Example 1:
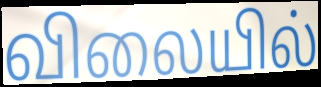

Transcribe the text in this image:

விலையில்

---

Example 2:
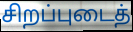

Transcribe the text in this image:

சிறப்புடைத்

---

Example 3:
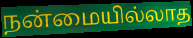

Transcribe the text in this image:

நன்மையில்லாத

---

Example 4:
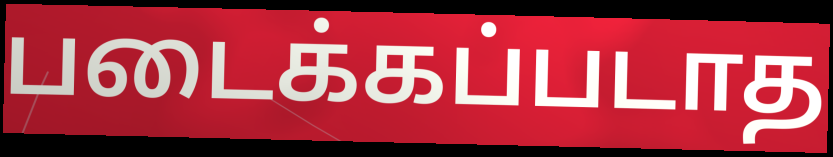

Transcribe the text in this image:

படைக்கப்படாத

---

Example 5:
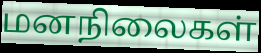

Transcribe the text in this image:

மனநிலைகள்